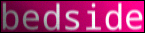
bedside